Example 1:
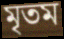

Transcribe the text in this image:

মৃতম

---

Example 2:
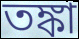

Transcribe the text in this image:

তঙ্কা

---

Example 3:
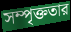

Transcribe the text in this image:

সম্পৃক্ততার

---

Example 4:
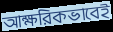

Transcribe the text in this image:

আক্ষরিকভাবেই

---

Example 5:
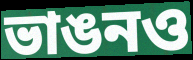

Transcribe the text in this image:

ভাঙনও